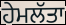
ਹੇਮਲੱਤਾ